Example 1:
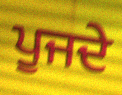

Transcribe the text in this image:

ਪੂਜਦੇ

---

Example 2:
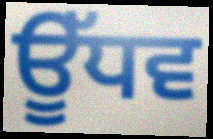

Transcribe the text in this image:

ਊੱਧਵ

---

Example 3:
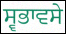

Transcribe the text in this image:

ਸ੍ਵਭਾਵਸੇ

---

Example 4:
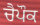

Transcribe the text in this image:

ਚੈਪੌਕ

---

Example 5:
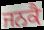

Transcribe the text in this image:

ਜਨਕੈ